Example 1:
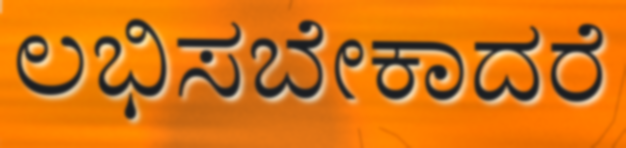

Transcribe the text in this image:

ಲಭಿಸಬೇಕಾದರೆ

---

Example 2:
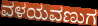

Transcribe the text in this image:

ವಳಯವಣುಗ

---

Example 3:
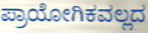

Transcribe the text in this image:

ಪ್ರಾಯೋಗಿಕವಲ್ಲದ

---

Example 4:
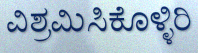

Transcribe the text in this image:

ವಿಶ್ರಮಿಸಿಕೊಳ್ಳಿರಿ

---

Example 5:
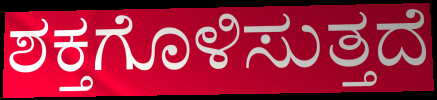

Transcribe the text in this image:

ಶಕ್ತಗೊಳಿಸುತ್ತದೆ